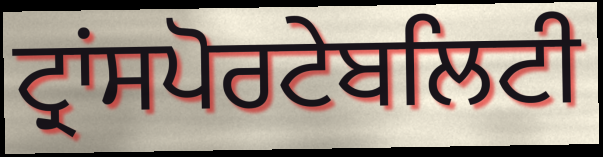
ਟ੍ਰਾਂਸਪੋਰਟੇਬਲਿਟੀ